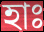
হাঃ